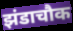
झंडाचौक